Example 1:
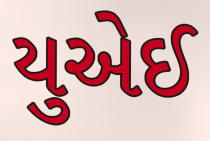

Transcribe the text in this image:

યુએઈ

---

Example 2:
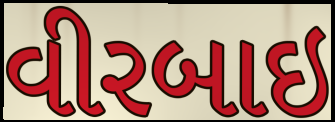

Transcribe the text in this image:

વીરબાઇ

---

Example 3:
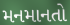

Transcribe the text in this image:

મનમાનતો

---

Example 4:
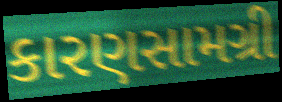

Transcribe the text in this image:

કારણસામગ્રી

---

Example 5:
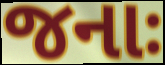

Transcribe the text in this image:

જનાઃ